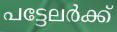
പട്ടേലർക്ക്